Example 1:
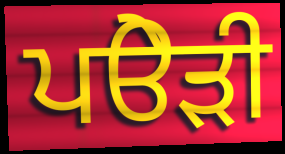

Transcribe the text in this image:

ਪੳੇੜੀ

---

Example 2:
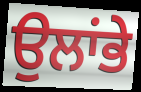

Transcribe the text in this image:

ਉਲਾਂਭੇ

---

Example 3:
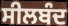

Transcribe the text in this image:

ਸੀਲਬੰਦ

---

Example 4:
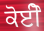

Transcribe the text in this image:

ਕੋਈੋ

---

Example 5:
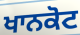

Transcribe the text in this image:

ਖਾਨਕੋਟ